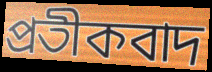
প্ৰতীকবাদ